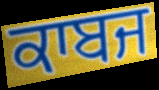
ਕਾਬਜ